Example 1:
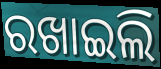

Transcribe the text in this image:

ରଖାଇଲି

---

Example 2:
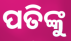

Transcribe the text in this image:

ପତିଙ୍କୁ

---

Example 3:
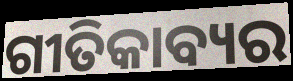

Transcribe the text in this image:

ଗୀତିକାବ୍ୟର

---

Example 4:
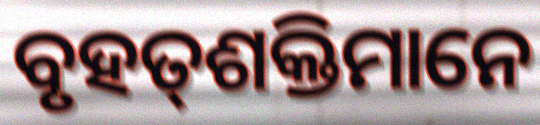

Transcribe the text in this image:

ବୃହତ୍‌ଶକ୍ତିମାନେ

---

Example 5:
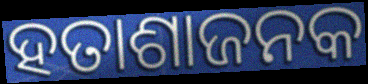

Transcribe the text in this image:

ହତାଶାଜନକ